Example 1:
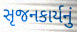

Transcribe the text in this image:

સૃજનકાર્યનું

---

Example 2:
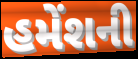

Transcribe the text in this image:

હમેંશની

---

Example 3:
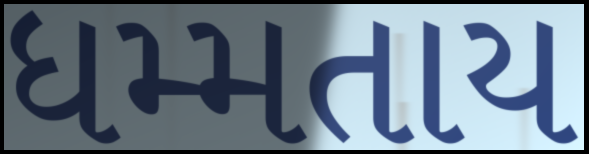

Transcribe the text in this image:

ધમ્મતાય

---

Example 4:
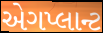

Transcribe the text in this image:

એગપ્લાન્ટ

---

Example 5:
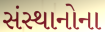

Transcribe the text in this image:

સંસ્થાનોના